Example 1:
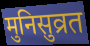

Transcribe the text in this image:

मुनिसुव्रत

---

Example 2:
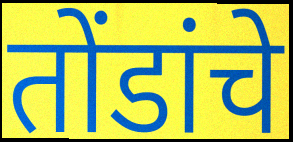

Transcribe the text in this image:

तोंडांचे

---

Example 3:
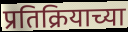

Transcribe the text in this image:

प्रतिक्रियाच्या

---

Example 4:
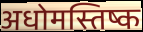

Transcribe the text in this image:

अधोमस्तिष्क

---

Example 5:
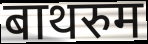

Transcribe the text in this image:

बाथरुम